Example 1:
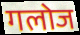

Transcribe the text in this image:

गलोज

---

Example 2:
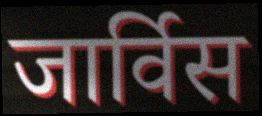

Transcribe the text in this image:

जार्विस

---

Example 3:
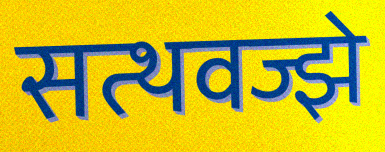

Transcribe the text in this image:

सत्थवज्झे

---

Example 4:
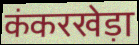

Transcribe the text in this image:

कंकरखेड़ा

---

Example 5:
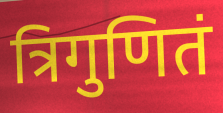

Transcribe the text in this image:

त्रिगुणितं